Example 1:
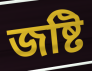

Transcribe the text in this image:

জষ্টি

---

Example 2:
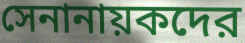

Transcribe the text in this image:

সেনানায়কদের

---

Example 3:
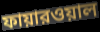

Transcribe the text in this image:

ফায়ারওয়াল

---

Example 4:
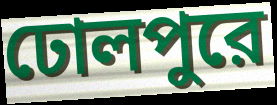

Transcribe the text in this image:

ঢোলপুরে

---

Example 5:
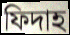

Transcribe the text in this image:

ফিদাহ